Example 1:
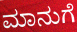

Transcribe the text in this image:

ಮಾನುಗೆ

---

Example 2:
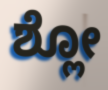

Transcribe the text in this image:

ಶ್ಲೋ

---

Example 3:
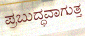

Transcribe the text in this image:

ಪ್ರಬುದ್ಧವಾಗುತ್ತ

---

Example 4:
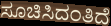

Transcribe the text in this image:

ಸೂಚಿಸಿದಂತಿದೆ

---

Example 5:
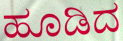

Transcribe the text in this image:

ಹೂಡಿದ